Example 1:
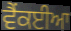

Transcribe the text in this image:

ਵੈਂਕਈਆ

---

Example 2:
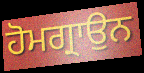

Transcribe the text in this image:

ਹੋਮਗ੍ਰਾਉਨ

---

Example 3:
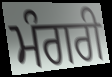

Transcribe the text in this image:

ਮੰਗਰੀ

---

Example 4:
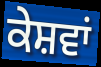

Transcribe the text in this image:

ਕੇਸ਼ਵਾਂ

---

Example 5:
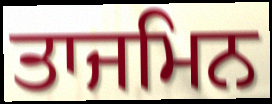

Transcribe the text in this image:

ਤਾਜਮਿਨ